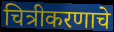
चित्रीकरणाचे